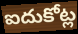
ఐదుకోట్ల